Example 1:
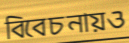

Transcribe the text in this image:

বিবেচনায়ও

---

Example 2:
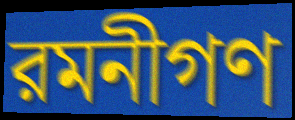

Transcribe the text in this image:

রমনীগণ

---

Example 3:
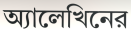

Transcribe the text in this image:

অ্যালেখিনের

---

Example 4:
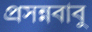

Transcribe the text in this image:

প্রসন্নবাবু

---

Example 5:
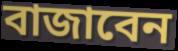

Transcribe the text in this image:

বাজাবেন